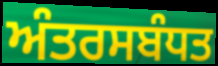
ਅੰਤਰਸਬੰਧਤ